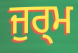
ਜੁਰ੍ਮ